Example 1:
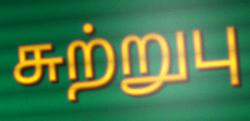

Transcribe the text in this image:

சுற்றுபு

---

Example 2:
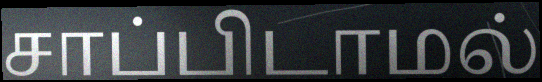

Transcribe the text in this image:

சாப்பிடாமல்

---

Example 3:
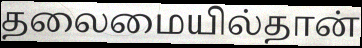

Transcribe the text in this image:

தலைமையில்தான்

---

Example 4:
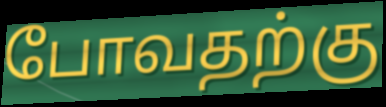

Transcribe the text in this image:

போவதற்கு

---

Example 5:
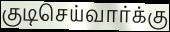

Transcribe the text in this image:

குடிசெய்வார்க்கு